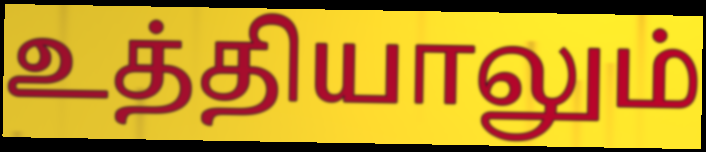
உத்தியாலும்